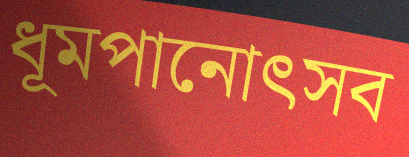
ধূমপানোৎসব